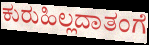
ಕುರುಹಿಲ್ಲದಾತಂಗೆ